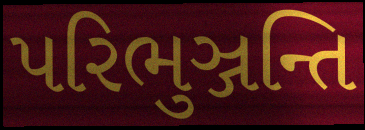
પરિભુઞ્જન્તિ